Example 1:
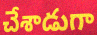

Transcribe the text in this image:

చేశాడుగా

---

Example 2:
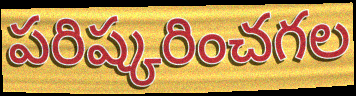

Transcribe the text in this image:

పరిష్కరించగల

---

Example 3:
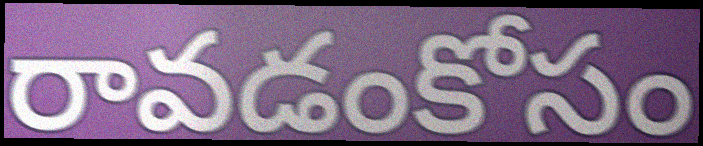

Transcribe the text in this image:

రావడంకోసం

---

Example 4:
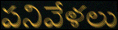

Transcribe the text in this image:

పనివేళలు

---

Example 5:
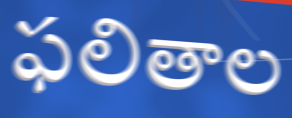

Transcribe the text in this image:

ఫలితాల